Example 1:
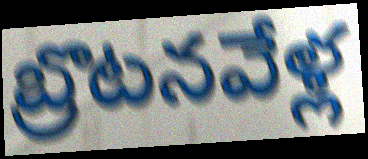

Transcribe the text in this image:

బ్రొటనవేళ్ల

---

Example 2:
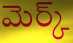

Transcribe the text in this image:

మెర్క్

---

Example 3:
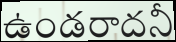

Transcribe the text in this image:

ఉండరాదనీ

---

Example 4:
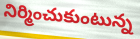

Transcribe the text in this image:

నిర్మించుకుంటున్న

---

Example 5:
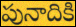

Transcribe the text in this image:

పునాదికి